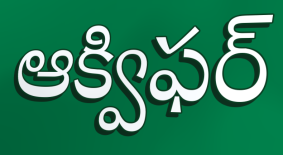
ఆక్విఫర్